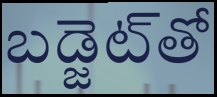
బడ్జెట్‌తో